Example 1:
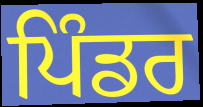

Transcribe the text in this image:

ਪਿੰਡਰ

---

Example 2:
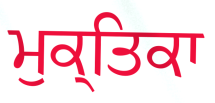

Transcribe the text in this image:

ਮੁਕ੍ਤਿਕਾ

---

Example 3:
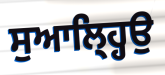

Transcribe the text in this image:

ਸੁਆਲ੍ਹ੍ਹਿਉ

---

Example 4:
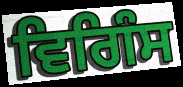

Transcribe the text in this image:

ਵਿਗਿੰਸ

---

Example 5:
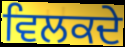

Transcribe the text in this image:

ਵਿਲਕਦੇ